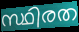
സ്ഥിരത